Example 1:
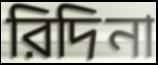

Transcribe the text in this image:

রিদিনা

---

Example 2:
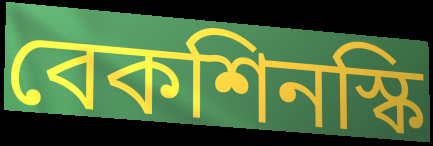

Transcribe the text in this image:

বেকশিনস্কি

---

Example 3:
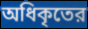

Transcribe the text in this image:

অধিকৃতের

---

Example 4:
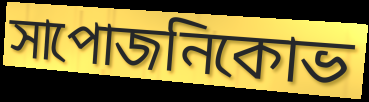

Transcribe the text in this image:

সাপোজনিকোভ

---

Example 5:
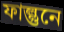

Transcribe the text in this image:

ফাল্গুনে